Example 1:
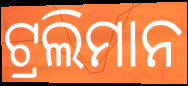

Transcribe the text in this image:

ଟ୍ରଲିମାନ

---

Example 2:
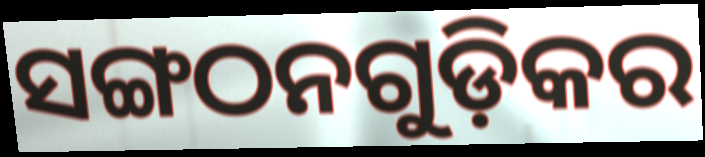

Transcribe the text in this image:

ସଙ୍ଗଠନଗୁଡ଼ିକର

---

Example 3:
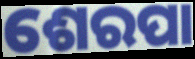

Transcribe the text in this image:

ଶେରପା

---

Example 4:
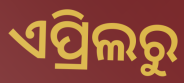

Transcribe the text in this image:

ଏପ୍ରିଲରୁ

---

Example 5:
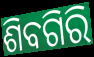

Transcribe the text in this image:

ଶିବଗିରି